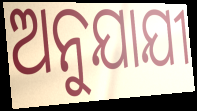
ଅନୁଯାଯୀ